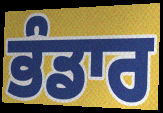
ਭੰਡਾਰ